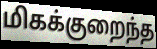
மிகக்குறைந்த